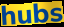
hubs